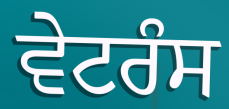
ਵੇਟਰੰਸ